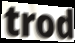
trod